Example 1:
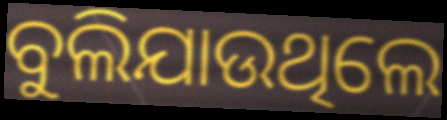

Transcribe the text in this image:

ବୁଲିଯାଉଥିଲେ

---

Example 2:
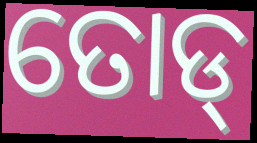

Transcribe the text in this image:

ତୋଡ୍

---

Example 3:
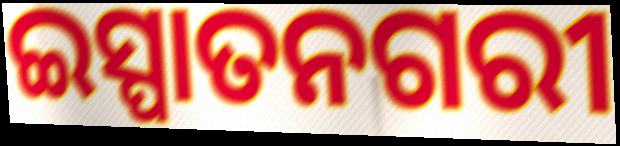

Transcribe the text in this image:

ଇସ୍ପାତନଗରୀ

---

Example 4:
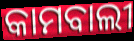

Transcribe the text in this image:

କାମବାଲୀ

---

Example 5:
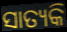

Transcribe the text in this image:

ସାତ୍ଯକି